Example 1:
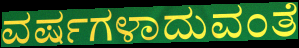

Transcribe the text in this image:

ವರ್ಷಗಳಾದುವಂತೆ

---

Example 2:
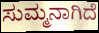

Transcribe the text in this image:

ಸುಮ್ಮನಾಗಿದೆ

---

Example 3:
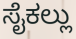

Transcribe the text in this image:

ಸೈಕಲ್ಲು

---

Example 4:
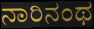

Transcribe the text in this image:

ನಾರಿನಂಥ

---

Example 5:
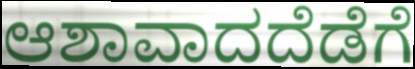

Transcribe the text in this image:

ಆಶಾವಾದದೆಡೆಗೆ